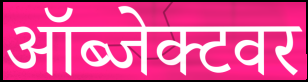
ऑब्जेक्टवर